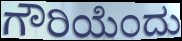
ಗೌರಿಯೆಂದು